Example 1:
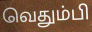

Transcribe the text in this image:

வெதும்பி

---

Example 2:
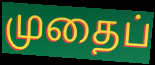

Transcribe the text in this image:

முதைப்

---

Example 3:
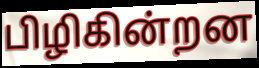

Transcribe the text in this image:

பிழிகின்றன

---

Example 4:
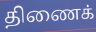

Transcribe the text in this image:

திணைக்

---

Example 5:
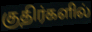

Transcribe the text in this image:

குதிர்களில்